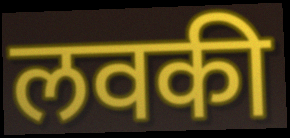
लवकी